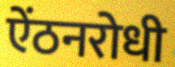
ऐंठनरोधी